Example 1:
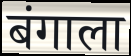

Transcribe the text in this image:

बंगाला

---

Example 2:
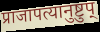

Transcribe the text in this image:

प्राजापत्यानुष्टुप्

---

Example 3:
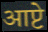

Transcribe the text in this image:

आप्टे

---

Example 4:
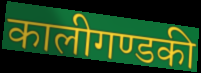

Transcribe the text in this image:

कालीगण्डकी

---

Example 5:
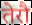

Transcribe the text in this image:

तेरौ